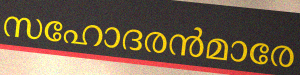
സഹോദരൻമാരേ